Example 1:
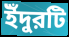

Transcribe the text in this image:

ইঁদুরটি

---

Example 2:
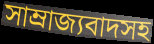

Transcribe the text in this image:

সাম্রাজ্যবাদসহ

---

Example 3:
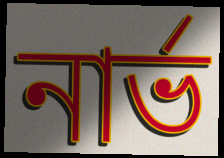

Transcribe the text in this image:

নার্ভ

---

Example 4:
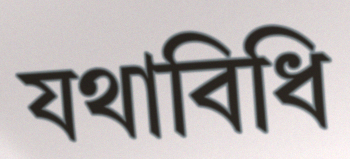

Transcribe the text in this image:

যথাবিধি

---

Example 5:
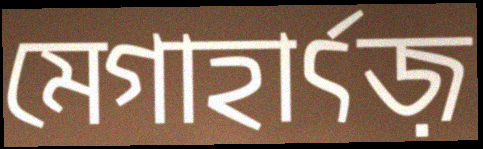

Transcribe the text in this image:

মেগাহার্ৎজ়